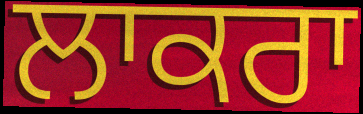
ਲਾਕਰਾ